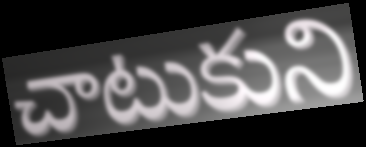
చాటుకుని